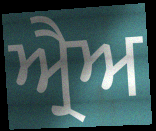
ਅ੍ਰੈਅ